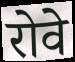
रोवे